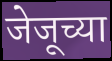
जेजूच्या